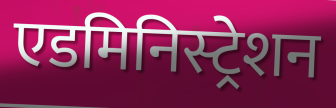
एडमिनिस्‍ट्रेशन